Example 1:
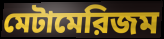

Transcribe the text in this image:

মেটামেরিজম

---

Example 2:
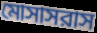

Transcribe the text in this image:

মোসাসরাস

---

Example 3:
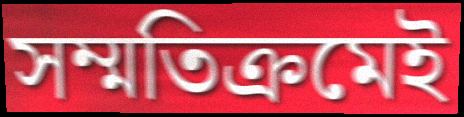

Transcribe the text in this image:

সম্মতিক্রমেই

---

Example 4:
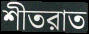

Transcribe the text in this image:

শীতরাত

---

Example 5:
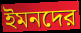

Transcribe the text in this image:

ইমনদের